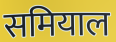
समियाल